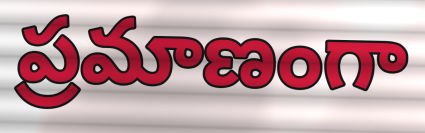
ప్రమాణంగా